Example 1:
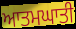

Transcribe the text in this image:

ਆਤਮਘਾਤੀ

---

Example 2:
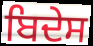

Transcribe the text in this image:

ਬਿਦੇਸ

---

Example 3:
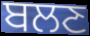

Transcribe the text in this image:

ਬਲਣ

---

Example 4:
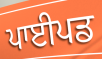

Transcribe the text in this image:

ਪਾਈਪਡ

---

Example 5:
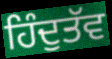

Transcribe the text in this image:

ਹਿੰਦੁਤੱਵ